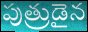
పుత్రుడైన